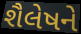
શૈલેષને